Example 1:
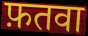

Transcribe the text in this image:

फ़तवा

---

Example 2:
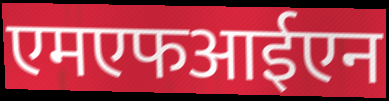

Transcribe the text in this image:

एमएफआईएन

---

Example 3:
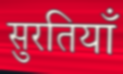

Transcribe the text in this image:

सुरतियाँ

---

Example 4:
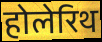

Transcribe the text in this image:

होलेरिथ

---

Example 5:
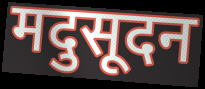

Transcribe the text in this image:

मदुसूदन